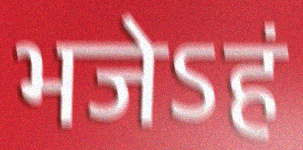
भजेऽहं